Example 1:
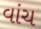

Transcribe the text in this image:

વાંચ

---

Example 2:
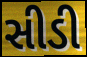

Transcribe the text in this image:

સીડી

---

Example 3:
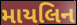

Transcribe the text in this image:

માયલિન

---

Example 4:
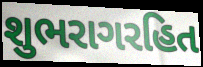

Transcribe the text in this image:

શુભરાગરહિત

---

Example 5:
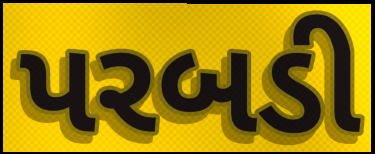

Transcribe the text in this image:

પરબડી